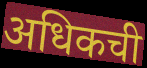
अधिकची